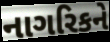
નાગરિકને